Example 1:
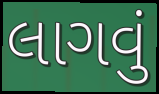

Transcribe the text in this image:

લાગવું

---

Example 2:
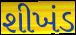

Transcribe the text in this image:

શીખંડ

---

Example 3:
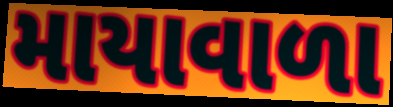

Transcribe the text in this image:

માયાવાળા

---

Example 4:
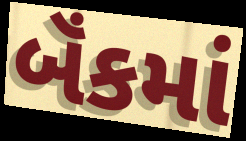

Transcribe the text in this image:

બૅંકમાં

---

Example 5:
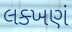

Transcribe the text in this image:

લક્ખણં